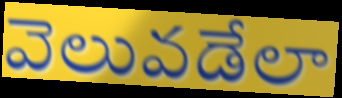
వెలువడేలా